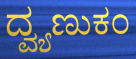
ದ್ವ್ಯಣುಕಂ